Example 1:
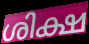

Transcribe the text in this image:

ശിക്ഷ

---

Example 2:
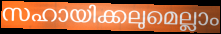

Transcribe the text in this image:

സഹായിക്കലുമെല്ലാം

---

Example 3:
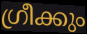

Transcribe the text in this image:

ഗ്രീക്കും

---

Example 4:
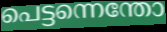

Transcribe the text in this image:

പെട്ടന്നെന്തോ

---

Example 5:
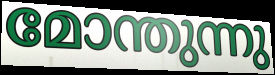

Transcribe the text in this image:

മോന്തുന്നു